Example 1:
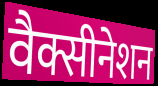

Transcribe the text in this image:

वैक्सीनेशन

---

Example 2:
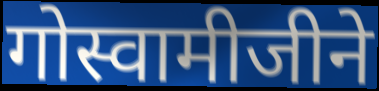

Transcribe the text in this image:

गोस्वामीजीने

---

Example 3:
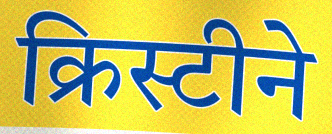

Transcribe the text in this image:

क्रिस्टीने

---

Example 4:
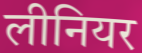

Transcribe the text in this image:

लीनियर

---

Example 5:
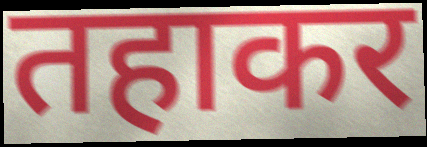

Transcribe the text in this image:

तहाकर